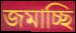
জমাচ্ছি